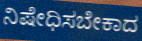
ನಿಷೇಧಿಸಬೇಕಾದ